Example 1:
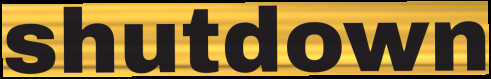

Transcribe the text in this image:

shutdown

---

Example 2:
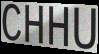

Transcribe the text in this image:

CHHU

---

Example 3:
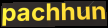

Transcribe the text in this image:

pachhun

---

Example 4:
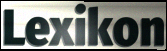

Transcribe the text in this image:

Lexikon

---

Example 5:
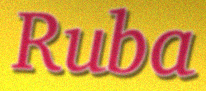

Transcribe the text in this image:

Ruba